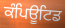
ਕੰਪਿਊਟਿਡ